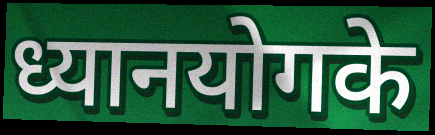
ध्यानयोगके